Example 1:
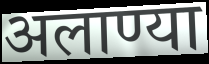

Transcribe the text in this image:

अलाण्या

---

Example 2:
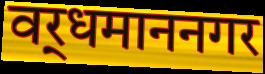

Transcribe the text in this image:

वर्धमाननगर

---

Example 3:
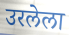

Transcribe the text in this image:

उरलेला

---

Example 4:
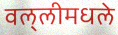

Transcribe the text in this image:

वल्लीमधले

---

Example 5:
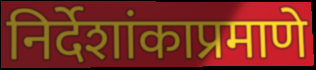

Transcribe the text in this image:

निर्देशांकाप्रमाणे